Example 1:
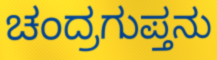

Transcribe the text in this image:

ಚಂದ್ರಗುಪ್ತನು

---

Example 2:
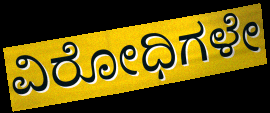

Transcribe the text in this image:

ವಿರೋಧಿಗಳೇ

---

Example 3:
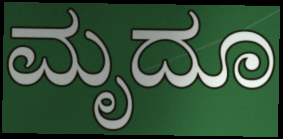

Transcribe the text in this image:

ಮೃದೂ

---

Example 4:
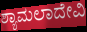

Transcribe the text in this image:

ಶ್ಯಾಮಲಾದೇವಿ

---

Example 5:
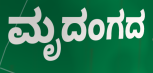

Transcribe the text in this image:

ಮೃದಂಗದ